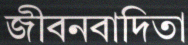
জীবনবাদিতা